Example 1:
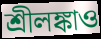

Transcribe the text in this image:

শ্রীলঙ্কাও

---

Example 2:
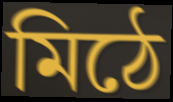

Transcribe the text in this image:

মিঠে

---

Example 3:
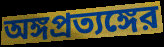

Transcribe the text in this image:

অঙ্গপ্রত্যঙ্গের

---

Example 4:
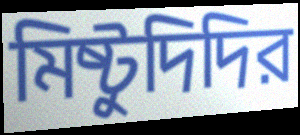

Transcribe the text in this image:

মিষ্টুদিদির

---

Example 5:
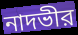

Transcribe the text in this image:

নাদভীর